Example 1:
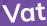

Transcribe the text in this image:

Vat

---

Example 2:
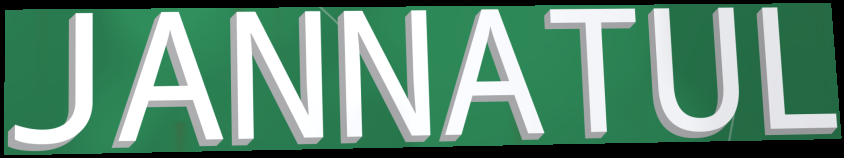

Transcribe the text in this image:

JANNATUL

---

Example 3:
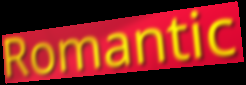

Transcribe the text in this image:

Romantic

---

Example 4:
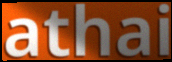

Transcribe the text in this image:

athai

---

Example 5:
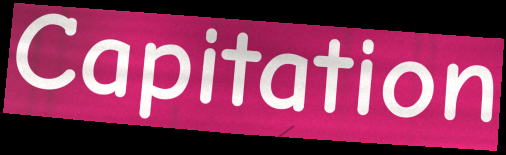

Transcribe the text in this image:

Capitation